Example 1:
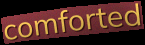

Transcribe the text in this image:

comforted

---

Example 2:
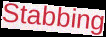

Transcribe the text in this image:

Stabbing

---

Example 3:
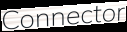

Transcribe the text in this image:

Connector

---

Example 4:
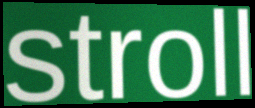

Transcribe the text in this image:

stroll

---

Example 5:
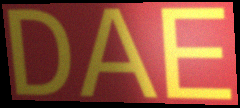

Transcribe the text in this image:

DAE